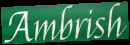
Ambrish